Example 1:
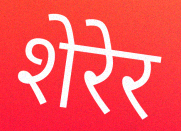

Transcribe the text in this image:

शेरेर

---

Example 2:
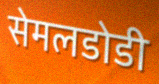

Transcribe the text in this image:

सेमलडोडी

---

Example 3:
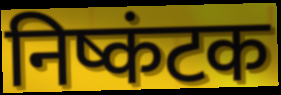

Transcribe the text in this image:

निष्कंटक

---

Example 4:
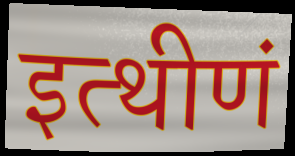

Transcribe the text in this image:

इत्थीणं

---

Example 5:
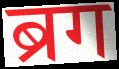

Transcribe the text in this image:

ब्रग